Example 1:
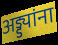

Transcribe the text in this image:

अड्ड्यांना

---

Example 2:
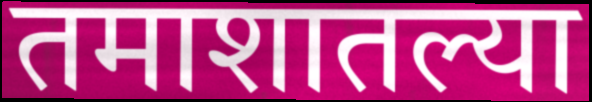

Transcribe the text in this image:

तमाशातल्या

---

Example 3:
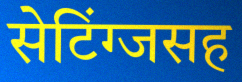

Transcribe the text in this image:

सेटिंग्जसह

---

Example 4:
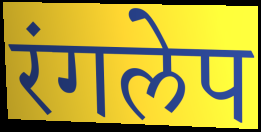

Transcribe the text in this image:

रंगलेप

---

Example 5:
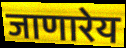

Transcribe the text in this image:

जाणारेय